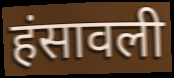
हंसावली